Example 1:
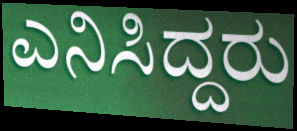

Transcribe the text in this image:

ಎನಿಸಿದ್ದರು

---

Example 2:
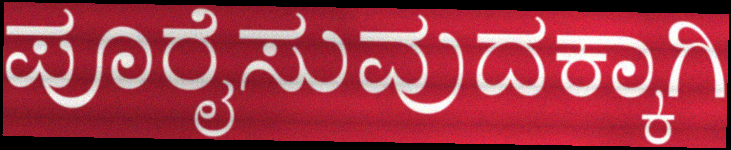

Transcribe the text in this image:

ಪೂರೈಸುವುದಕ್ಕಾಗಿ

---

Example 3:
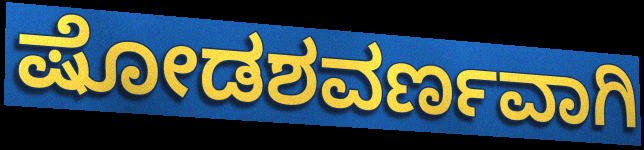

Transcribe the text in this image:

ಷೋಡಶವರ್ಣವಾಗಿ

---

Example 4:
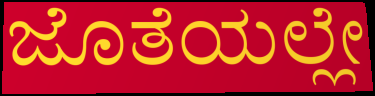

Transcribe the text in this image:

ಜೊತೆಯಲ್ಲೇ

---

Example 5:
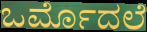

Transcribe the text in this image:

ಒರ್ಮೊದಲೆ